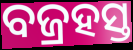
ବଜ୍ରହସ୍ତ